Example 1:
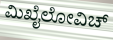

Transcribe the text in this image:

ಮಿಖೈಲೋವಿಚ್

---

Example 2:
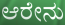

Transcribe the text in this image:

ಆರೇನು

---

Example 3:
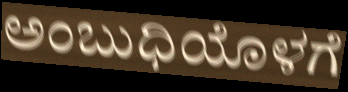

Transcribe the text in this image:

ಅಂಬುಧಿಯೊಳಗೆ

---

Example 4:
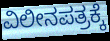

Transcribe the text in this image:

ವಿಲೀನಪತ್ರಕ್ಕೆ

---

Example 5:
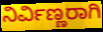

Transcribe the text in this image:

ನಿರ್ವಿಣ್ಣರಾಗಿ